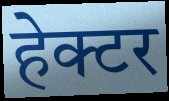
हेक्‍टर